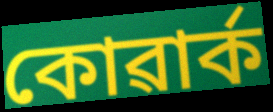
কোৱাৰ্ক